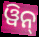
ୱିନ୍